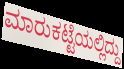
ಮಾರುಕಟ್ಟೆಯಲ್ಲಿದ್ದು